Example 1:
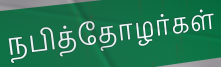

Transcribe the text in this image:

நபித்தோழர்கள்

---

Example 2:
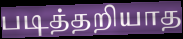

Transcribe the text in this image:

படித்தறியாத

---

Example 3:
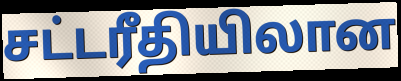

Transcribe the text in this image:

சட்டரீதியிலான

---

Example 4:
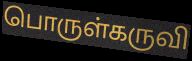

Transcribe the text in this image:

பொருள்கருவி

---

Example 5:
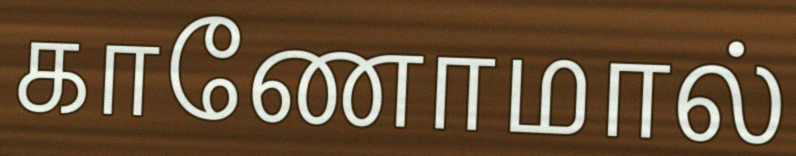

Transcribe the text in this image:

காணோமால்